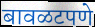
बावळटपणे